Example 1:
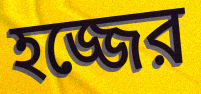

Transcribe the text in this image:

হজ্জের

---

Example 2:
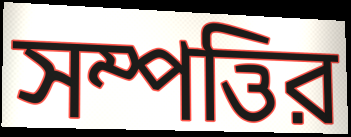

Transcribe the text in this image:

সম্পত্তির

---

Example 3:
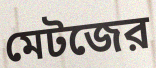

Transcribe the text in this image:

মেটজের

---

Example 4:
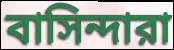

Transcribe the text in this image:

বাসিন্দারা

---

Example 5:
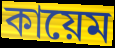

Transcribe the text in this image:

কায়েম